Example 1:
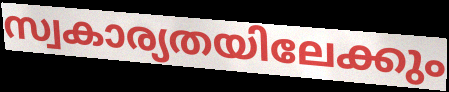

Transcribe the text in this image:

സ്വകാര്യതയിലേക്കും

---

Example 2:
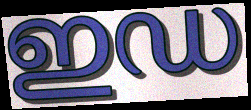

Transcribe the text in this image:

ഇഡ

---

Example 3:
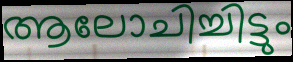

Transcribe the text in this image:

ആലോചിച്ചിട്ടും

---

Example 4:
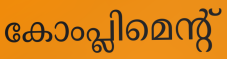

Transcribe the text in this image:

കോംപ്ലിമെന്റ്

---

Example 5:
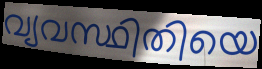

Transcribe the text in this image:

വ്യവസ്ഥിതിയെ